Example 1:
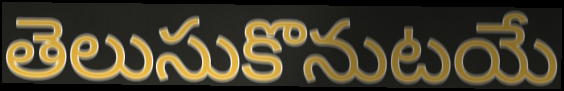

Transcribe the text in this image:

తెలుసుకొనుటయే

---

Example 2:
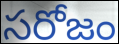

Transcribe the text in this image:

సరోజం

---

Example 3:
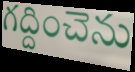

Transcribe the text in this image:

గద్దించెను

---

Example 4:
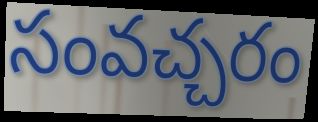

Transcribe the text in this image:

సంవచ్చరం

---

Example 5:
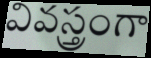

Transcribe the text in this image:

వివస్త్రంగా